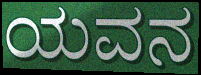
ಯವನ